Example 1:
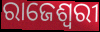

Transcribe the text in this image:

ରାଜେଶ୍ଵରୀ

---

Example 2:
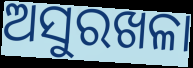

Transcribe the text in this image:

ଅସୁରଖଳା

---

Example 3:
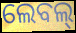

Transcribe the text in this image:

ଲେବଲ୍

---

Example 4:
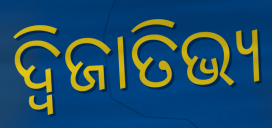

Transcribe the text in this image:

ଦ୍ବିଜାତିଭ୍ୟ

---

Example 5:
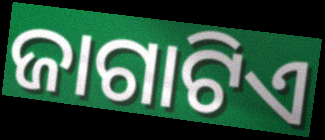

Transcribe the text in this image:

ଜାଗାଟିଏ